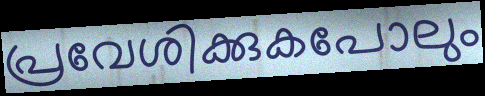
പ്രവേശിക്കുകപോലും